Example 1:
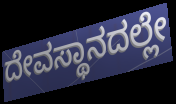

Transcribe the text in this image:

ದೇವಸ್ಥಾನದಲ್ಲೇ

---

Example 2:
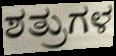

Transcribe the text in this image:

ಶತ್ರುಗಳ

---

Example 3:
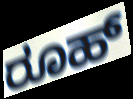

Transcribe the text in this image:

ರೂಹ್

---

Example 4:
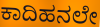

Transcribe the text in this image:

ಕಾದಿಹನಲೇ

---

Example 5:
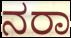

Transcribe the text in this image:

ನರಾ